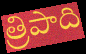
త్రిపాది